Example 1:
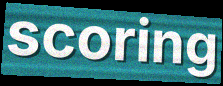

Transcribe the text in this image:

scoring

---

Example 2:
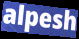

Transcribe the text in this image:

alpesh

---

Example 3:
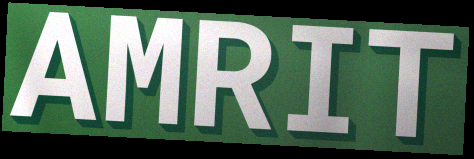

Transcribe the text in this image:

AMRIT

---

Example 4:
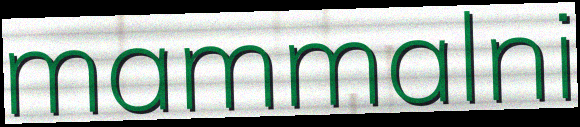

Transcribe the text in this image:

mammalni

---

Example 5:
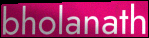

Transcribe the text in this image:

bholanath